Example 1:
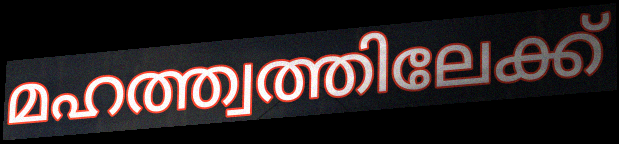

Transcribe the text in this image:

മഹത്ത്വത്തിലേക്ക്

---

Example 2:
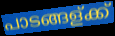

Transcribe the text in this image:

പാടങ്ങള്ക്ക്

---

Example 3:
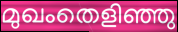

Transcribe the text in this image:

മുഖംതെളിഞ്ഞു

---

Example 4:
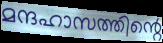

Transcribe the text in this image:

മന്ദഹാസത്തിന്റെ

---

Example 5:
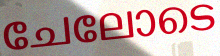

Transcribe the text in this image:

ചേലോടെ